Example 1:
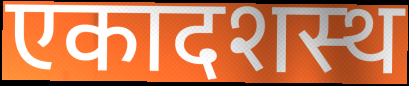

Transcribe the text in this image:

एकादशस्थ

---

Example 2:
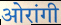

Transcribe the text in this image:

ओरांगी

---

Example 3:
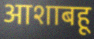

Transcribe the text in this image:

आशाबहू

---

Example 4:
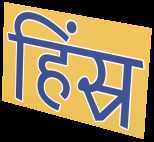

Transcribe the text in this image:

हिंस्र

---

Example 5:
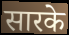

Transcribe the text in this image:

सारके